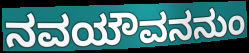
ನವಯೌವನನುಂ